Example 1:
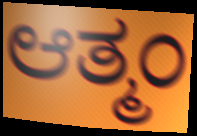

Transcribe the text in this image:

ಆತ್ಮಂ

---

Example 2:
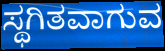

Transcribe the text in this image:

ಸ್ಥಗಿತವಾಗುವ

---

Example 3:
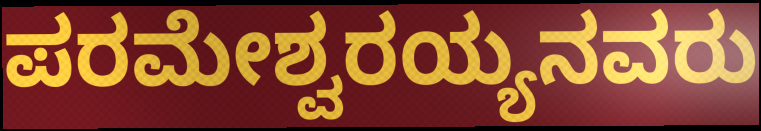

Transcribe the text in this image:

ಪರಮೇಶ್ವರಯ್ಯನವರು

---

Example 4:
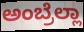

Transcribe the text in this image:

ಅಂಬ್ರೆಲ್ಲಾ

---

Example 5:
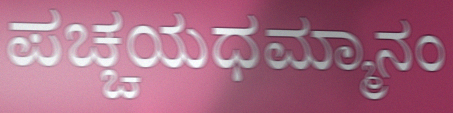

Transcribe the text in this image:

ಪಚ್ಚಯಧಮ್ಮಾನಂ